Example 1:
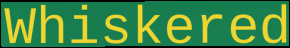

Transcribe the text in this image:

Whiskered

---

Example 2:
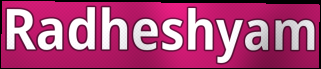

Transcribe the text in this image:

Radheshyam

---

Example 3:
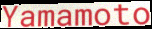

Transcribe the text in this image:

Yamamoto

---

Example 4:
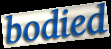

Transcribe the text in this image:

bodied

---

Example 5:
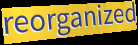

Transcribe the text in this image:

reorganized